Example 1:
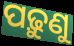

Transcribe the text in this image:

ପଢ଼ୁଣୁ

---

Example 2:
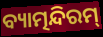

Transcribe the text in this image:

ବ୍ୟାତ୍ମନ୍ଦିରମ୍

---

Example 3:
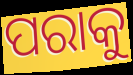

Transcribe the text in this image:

ପରାକୁ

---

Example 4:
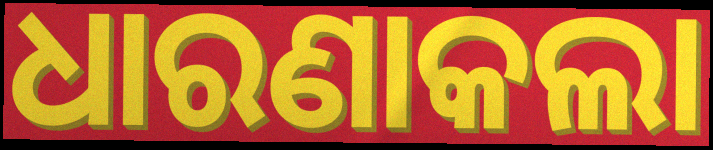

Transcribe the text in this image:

ଧାରଣାକଲା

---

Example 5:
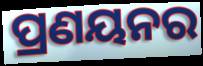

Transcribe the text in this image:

ପ୍ରଣୟନର